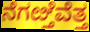
ನೆಗೞ್ತೆವೆತ್ತ